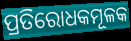
ପ୍ରତିରୋଧକମୂଳକ